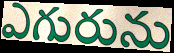
ఎగురును